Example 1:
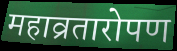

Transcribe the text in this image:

महाव्रतारोपण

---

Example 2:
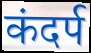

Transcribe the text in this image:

कंदर्प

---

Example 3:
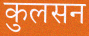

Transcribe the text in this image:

कुलसन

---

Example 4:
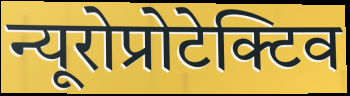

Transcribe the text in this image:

न्यूरोप्रोटेक्टिव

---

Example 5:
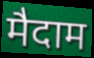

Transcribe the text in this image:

मैदाम